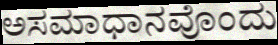
ಅಸಮಾಧಾನವೊಂದು